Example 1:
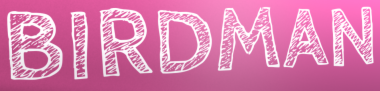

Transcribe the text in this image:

BIRDMAN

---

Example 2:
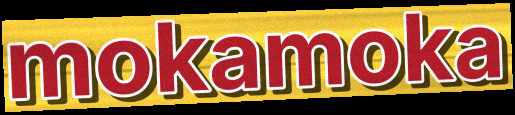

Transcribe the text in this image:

mokamoka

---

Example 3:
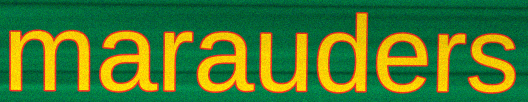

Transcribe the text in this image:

marauders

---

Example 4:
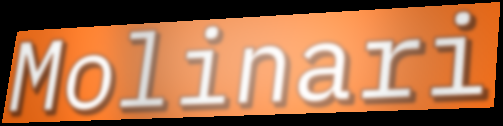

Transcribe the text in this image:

Molinari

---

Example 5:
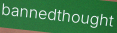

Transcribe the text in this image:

bannedthought